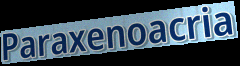
Paraxenoacria